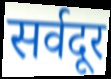
सर्वदूर